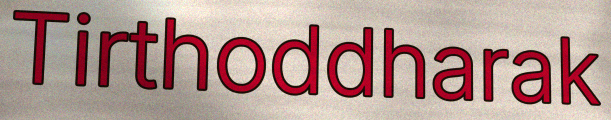
Tirthoddharak